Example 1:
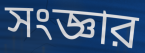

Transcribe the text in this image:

সংজ্ঞার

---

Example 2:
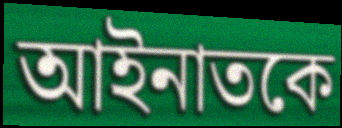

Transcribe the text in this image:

আইনাতকে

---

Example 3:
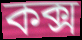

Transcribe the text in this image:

কক্স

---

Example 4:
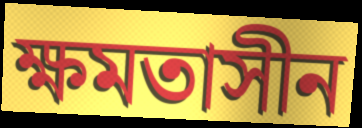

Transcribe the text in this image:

ক্ষমতাসীন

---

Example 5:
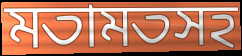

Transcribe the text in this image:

মতামতসহ